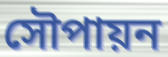
সৌপায়ন